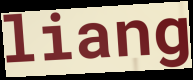
liang